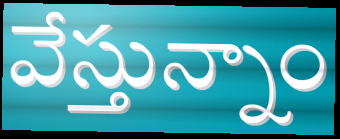
వేస్తున్నాం